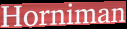
Horniman